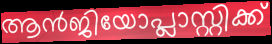
ആൻജിയോപ്ലാസ്റ്റിക്ക്